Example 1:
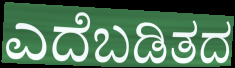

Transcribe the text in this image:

ಎದೆಬಡಿತದ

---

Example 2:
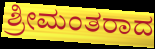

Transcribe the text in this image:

ಶ್ರೀಮಂತರಾದ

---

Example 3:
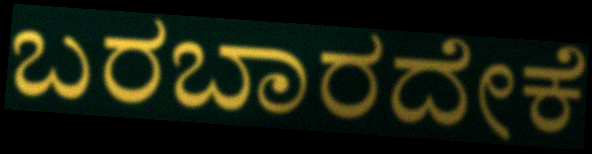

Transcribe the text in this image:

ಬರಬಾರದೇಕೆ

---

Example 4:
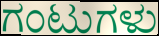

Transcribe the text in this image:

ಗಂಟುಗಳು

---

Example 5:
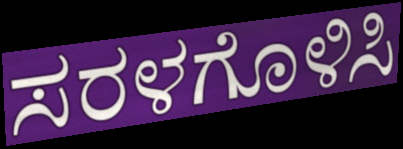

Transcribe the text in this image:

ಸರಳಗೊಳಿಸಿ